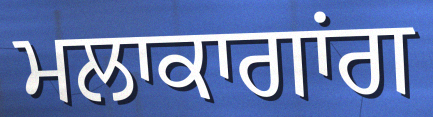
ਮਲਾਕਾਗਾਂਗ